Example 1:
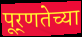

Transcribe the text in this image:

पूर्णतेच्या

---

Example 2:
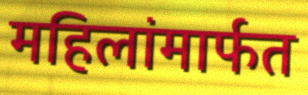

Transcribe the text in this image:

महिलांमार्फत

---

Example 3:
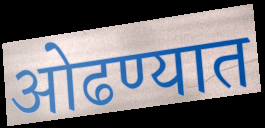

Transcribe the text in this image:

ओढण्यात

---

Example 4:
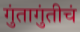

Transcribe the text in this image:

गुंतागुंतीचं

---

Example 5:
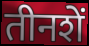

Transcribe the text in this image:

तीनशें